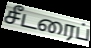
சீடரைப்